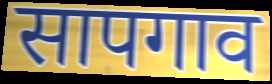
सापगाव